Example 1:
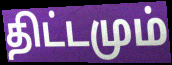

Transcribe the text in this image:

திட்டமும்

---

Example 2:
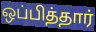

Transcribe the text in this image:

ஒப்பித்தார்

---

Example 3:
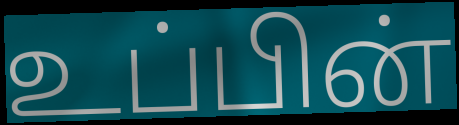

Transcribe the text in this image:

உப்பின்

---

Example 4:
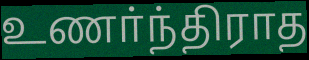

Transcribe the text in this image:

உணர்ந்திராத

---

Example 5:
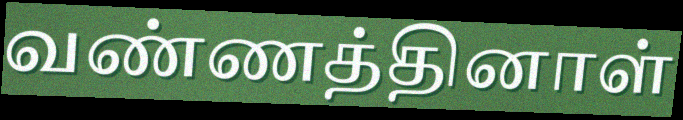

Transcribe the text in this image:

வண்ணத்தினாள்